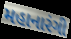
મહાનારંગી